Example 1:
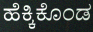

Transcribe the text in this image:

ಹೆಕ್ಕಿಕೊಂಡ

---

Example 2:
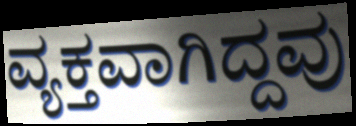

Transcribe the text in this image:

ವ್ಯಕ್ತವಾಗಿದ್ದವು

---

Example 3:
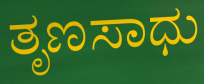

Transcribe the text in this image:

ತೃಣಸಾಧು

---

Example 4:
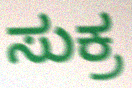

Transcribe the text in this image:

ಸುಕ್ರ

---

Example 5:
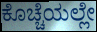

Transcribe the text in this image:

ಕೊಚ್ಚೆಯಲ್ಲೇ